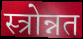
स्त्रोन्नत